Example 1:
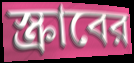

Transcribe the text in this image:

স্ক্রাবের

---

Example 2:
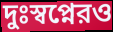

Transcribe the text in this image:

দুঃস্বপ্নেরও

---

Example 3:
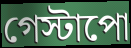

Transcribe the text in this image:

গেস্টাপো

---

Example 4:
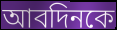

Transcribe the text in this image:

আবদিনকে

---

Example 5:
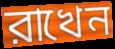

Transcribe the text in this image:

রাখেন